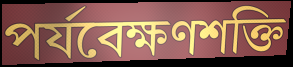
পর্যবেক্ষণশক্তি